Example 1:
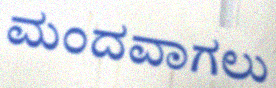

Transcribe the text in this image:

ಮಂದವಾಗಲು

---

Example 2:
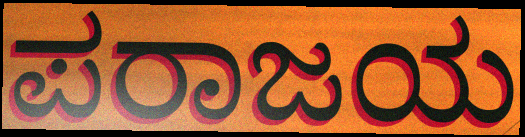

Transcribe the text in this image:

ಪರಾಜಯ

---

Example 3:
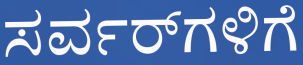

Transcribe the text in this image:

ಸರ್ವರ್‌ಗಳಿಗೆ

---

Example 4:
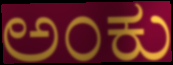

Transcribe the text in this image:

ಅಂಕು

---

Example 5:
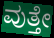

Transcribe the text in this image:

ವುತ್ತೇ